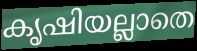
കൃഷിയല്ലാതെ